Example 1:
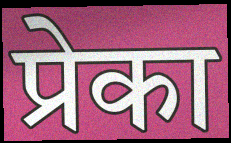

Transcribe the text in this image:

प्रेका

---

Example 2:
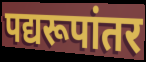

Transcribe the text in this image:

पद्यरूपांतर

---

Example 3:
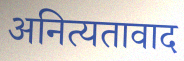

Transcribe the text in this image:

अनित्यतावाद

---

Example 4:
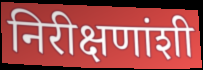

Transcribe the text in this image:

निरीक्षणांशी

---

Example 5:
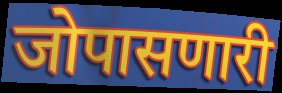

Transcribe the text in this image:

जोपासणारी